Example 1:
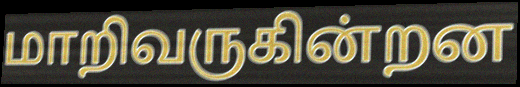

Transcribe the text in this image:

மாறிவருகின்றன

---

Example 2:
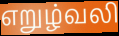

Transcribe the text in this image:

எறுழ்வலி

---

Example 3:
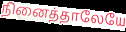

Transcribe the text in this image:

நினைத்தாலேயே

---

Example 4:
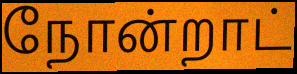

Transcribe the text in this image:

நோன்றாட்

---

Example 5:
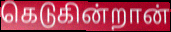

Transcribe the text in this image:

கெடுகின்றான்